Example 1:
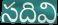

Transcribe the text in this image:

సదివి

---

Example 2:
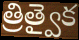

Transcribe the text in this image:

త్రిత్వైక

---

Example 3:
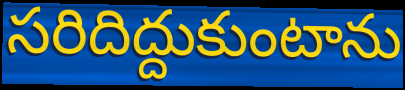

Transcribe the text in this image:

సరిదిద్దుకుంటాను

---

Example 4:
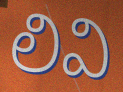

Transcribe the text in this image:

లివి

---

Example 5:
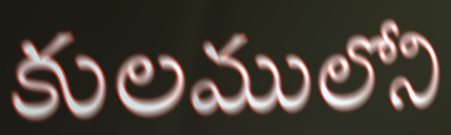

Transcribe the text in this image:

కులములోని